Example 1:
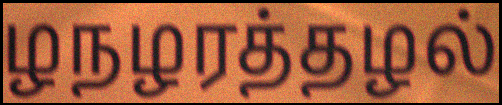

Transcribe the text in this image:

ழநழரத்தழல்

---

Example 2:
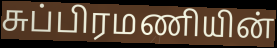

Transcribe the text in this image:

சுப்பிரமணியின்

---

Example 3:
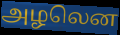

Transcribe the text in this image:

அழலென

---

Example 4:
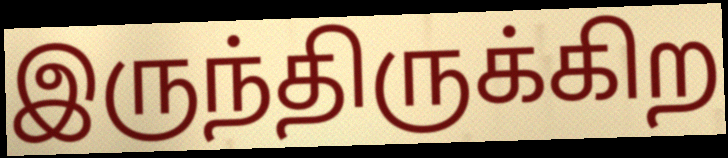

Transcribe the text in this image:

இருந்திருக்கிற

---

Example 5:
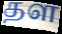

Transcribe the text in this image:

தள